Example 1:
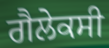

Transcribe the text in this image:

ਗੈਲੇਕਸੀ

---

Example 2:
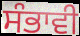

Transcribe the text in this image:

ਸੰਭਾਵੀ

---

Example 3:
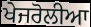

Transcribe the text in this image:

ਖੇਜਰੋਲੀਆ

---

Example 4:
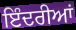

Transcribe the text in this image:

ਇੰਦਰੀਆਂ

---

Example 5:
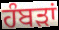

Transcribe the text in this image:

ਹੰਬੜਾਂ